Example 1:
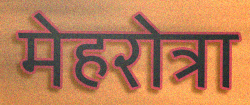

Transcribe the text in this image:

मेहरोत्रा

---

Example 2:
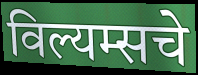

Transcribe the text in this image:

विल्यम्सचे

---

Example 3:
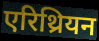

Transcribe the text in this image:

एरिथ्रियन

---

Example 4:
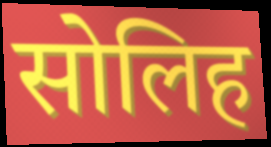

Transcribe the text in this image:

सोलिह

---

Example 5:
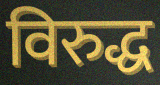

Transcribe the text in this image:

विरुद्ध